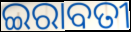
ଇରାବତୀ